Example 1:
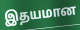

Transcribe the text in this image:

இதயமான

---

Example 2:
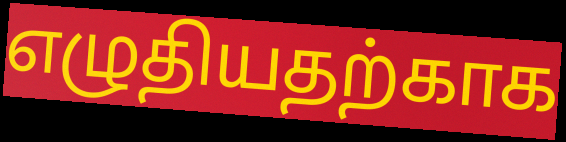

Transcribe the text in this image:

எழுதியதற்காக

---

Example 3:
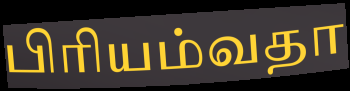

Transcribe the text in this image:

பிரியம்வதா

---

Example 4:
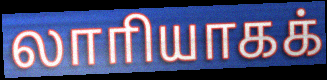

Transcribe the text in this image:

லாரியாகக்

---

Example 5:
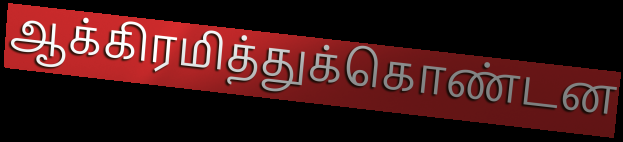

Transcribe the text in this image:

ஆக்கிரமித்துக்கொண்டன